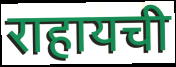
राहायची